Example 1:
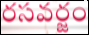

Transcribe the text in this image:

రసవర్జం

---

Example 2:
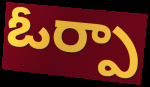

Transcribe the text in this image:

ఓర్పా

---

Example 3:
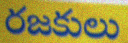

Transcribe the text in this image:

రజకులు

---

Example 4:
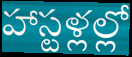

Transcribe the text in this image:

హాస్టళ్లల్లో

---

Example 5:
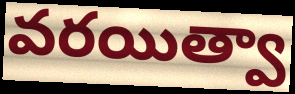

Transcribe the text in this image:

వరయిత్వా